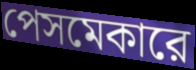
পেসমেকারে